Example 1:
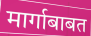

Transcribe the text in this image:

मार्गाबाबत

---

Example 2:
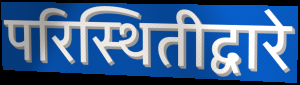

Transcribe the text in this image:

परिस्थितीद्वारे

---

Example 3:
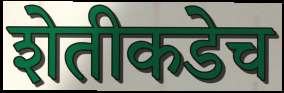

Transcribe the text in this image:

शेतीकडेच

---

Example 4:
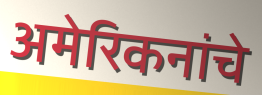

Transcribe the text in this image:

अमेरिकनांचे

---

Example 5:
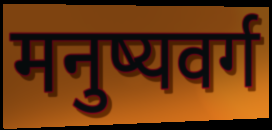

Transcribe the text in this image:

मनुष्यवर्ग